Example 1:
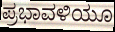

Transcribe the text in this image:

ಪ್ರಭಾವಳಿಯೂ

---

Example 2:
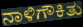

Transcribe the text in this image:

ನಾಳಿಗೌಕಿತು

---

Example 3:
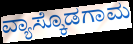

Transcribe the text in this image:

ವ್ಯಾಸ್ಕೊಡಗಾಮ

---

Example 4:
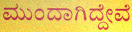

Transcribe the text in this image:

ಮುಂದಾಗಿದ್ದೇವೆ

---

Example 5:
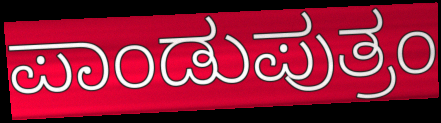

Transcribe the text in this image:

ಪಾಂಡುಪುತ್ರಂ